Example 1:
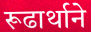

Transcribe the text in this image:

रूढार्थाने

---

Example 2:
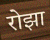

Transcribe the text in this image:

रोझा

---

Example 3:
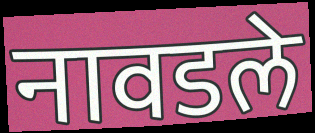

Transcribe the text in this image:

नावडले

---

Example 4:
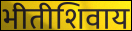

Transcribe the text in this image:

भीतीशिवाय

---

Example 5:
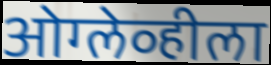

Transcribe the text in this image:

ओग्लेव्हीला